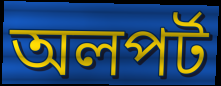
অলপর্ট